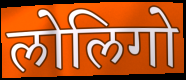
लोलिगो